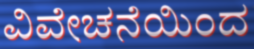
ವಿವೇಚನೆಯಿಂದ